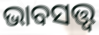
ଭାବସତ୍ତ୍ୱ